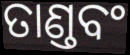
ତାଣ୍ଡବଂ